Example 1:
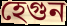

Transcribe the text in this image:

হেগুন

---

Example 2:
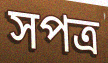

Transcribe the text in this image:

সপত্র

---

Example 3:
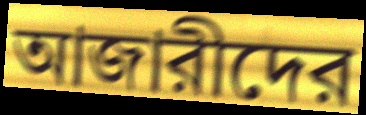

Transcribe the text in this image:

আজারীদের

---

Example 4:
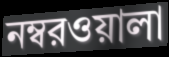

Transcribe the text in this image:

নম্বরওয়ালা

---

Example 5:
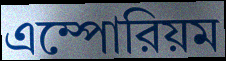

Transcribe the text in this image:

এম্পোরিয়ম